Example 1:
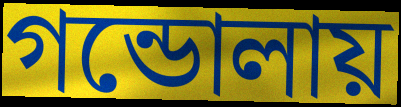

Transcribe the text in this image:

গন্ডোলায়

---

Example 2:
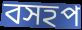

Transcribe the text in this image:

বসহপ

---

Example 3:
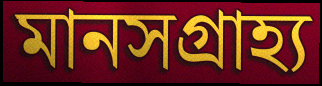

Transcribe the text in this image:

মানসগ্রাহ্য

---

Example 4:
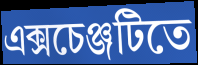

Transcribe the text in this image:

এক্সচেঞ্জটিতে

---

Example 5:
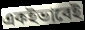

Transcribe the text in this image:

একইভাবেই